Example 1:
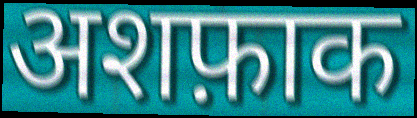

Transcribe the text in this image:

अशफ़ाक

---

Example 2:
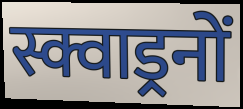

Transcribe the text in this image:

स्क्वाड्रनों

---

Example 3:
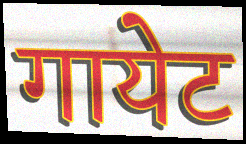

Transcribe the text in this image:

गायेट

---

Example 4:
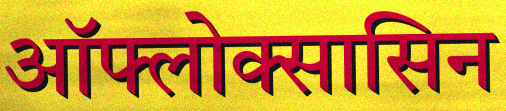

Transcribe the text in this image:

ऑफ्लोक्सासिन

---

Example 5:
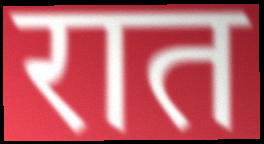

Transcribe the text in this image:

रात